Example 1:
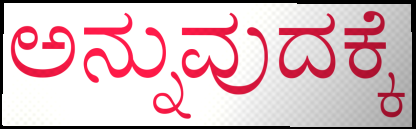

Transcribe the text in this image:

ಅನ್ನುವುದಕ್ಕೆ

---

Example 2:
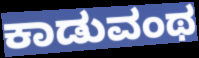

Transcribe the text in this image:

ಕಾಡುವಂಥ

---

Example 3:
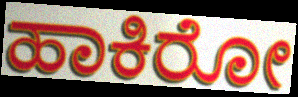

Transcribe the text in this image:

ಹಾಕಿರೋ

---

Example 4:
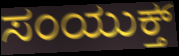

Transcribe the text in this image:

ಸಂಯುಕ್ತ್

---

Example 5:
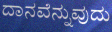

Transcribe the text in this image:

ದಾನವೆನ್ನುವುದು